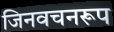
जिनवचनरूप